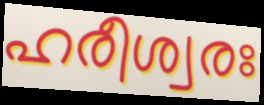
ഹരീശ്വരഃ